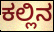
ಕಲ್ಲಿನ